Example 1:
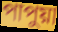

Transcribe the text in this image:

পাপুয়া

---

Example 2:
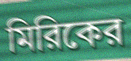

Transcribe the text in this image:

মিরিকের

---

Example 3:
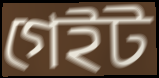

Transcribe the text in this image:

গেইট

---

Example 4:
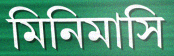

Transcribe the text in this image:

মিনিমাসি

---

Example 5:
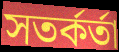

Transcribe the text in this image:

সতর্কর্তা